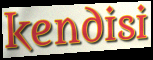
kendisi